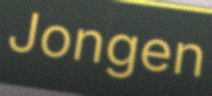
Jongen